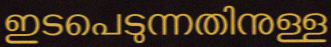
ഇടപെടുന്നതിനുള്ള